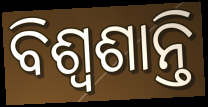
ବିଶ୍ୱଶାନ୍ତି